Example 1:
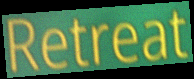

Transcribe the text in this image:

Retreat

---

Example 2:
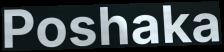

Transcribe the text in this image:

Poshaka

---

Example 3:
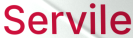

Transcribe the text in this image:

Servile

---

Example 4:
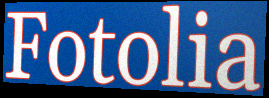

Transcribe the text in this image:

Fotolia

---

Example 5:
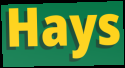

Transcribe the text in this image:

Hays